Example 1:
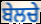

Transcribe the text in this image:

ਬੇਲਚੇ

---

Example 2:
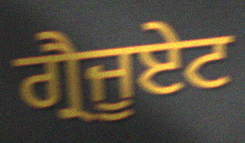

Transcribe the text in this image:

ਗ੍ਰੈਜੂਏਟ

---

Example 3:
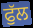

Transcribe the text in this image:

ਫੁੱਲ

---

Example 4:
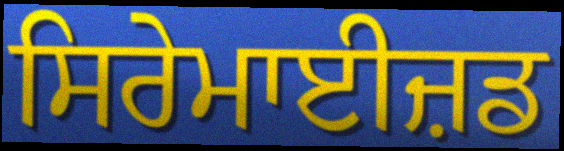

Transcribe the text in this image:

ਸਿਰੇਮਾਈਜ਼ਡ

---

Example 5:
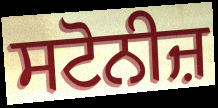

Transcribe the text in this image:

ਸਟੋਨੀਜ਼